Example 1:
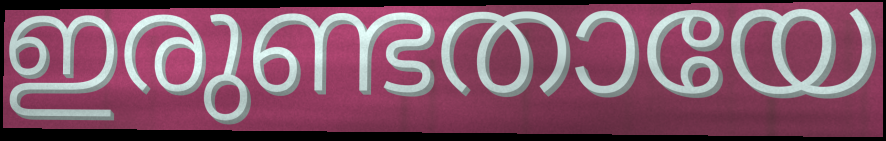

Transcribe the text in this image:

ഇരുണ്ടതായേ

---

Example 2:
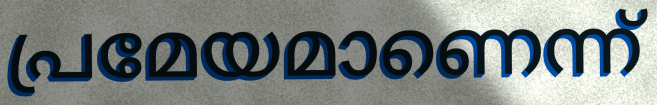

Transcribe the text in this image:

പ്രമേയമാണെന്ന്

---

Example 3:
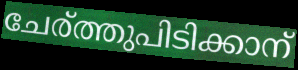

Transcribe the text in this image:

ചേര്ത്തുപിടിക്കാന്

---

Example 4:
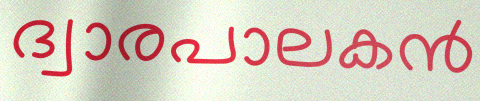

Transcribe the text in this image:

ദ്വാരപാലകൻ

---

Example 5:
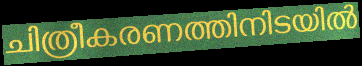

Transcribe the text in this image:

ചിത്രീകരണത്തിനിടയിൽ